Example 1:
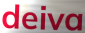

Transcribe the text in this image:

deiva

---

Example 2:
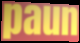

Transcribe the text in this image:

paun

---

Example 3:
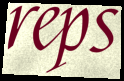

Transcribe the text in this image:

reps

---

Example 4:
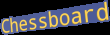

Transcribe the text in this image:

Chessboard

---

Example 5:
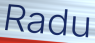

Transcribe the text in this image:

Radu